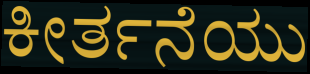
ಕೀರ್ತನೆಯು